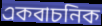
একবাচনিক